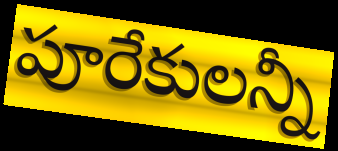
పూరేకులన్నీ